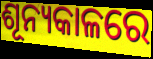
ଶୂନ୍ୟକାଳରେ